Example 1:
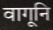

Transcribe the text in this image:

वागूनि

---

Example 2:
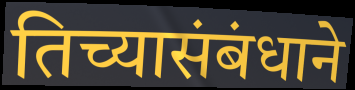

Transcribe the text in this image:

तिच्यासंबंधाने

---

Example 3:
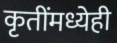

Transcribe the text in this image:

कृतींमध्येही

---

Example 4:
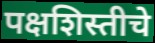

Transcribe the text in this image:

पक्षशिस्तीचे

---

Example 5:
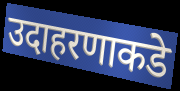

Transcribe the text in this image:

उदाहरणाकडे